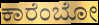
ಕಾರೆಂಬೋ